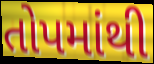
તોપમાંથી